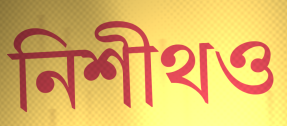
নিশীথও